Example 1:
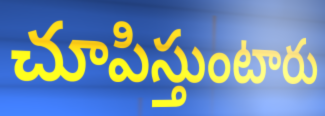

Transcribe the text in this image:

చూపిస్తుంటారు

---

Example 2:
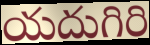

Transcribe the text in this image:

యదుగిరి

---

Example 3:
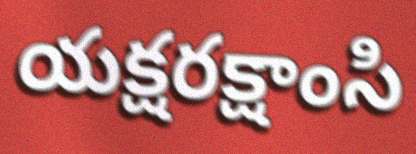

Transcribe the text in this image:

యక్షరక్షాంసి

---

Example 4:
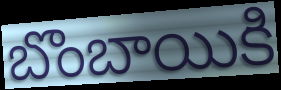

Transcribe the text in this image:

బొంబాయికి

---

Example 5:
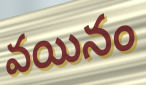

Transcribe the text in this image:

వయినం